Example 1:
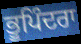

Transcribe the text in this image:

ਭੂਪਿੰਦਰਾ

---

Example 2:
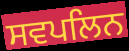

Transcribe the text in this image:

ਸਵਪਲਿਨ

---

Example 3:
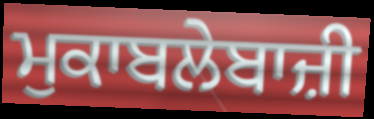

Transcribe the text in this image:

ਮੁਕਾਬਲੇਬਾਜ਼ੀ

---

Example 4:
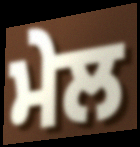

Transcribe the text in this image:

ਮੇਲ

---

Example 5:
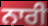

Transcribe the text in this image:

ਨਾਰੀ